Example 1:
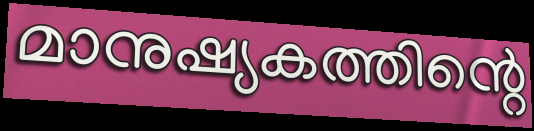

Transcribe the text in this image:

മാനുഷ്യകത്തിന്റെ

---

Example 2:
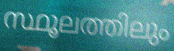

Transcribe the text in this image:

സ്ഥൂലത്തിലും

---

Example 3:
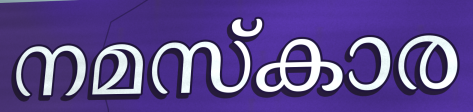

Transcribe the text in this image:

നമസ്കാര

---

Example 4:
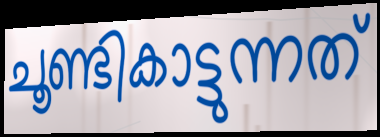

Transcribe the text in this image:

ചൂണ്ടികാട്ടുന്നത്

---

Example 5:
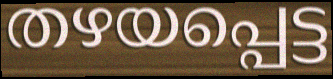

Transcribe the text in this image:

തഴയപ്പെട്ട